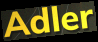
Adler